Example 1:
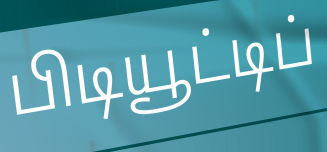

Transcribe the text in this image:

பிடியூட்டிப்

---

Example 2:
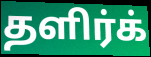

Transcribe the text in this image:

தளிர்க்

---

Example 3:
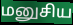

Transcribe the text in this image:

மனுசிய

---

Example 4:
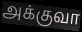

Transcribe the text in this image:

அக்குவா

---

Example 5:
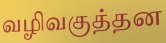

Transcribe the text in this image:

வழிவகுத்தன